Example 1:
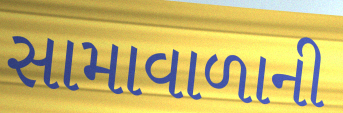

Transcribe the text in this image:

સામાવાળાની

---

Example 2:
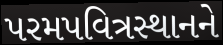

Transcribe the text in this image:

પરમપવિત્રસ્થાનને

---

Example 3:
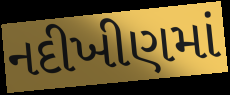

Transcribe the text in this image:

નદીખીણમાં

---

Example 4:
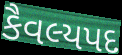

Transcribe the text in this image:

કૈવલ્યપદ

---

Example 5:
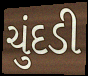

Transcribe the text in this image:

ચુંદડી